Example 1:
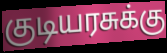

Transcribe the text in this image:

குடியரசுக்கு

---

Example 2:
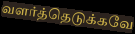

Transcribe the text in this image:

வளர்த்தெடுக்கவே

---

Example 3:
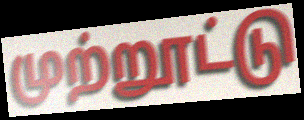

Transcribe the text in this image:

முற்றூட்டு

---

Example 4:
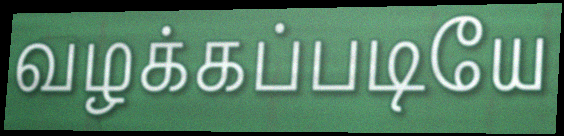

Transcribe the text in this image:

வழக்கப்படியே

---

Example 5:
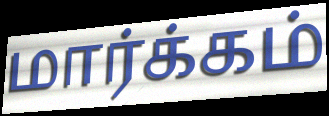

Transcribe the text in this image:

மார்க்கம்